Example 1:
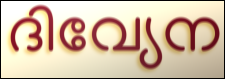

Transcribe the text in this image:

ദിവ്യേന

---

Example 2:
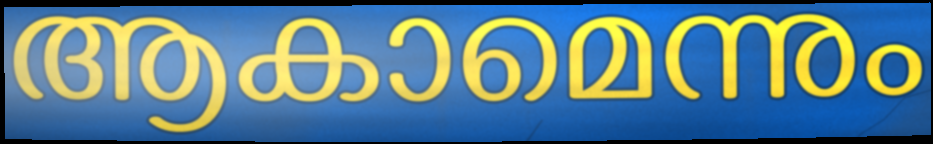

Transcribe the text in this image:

ആകാമെന്നും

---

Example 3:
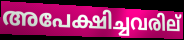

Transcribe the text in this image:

അപേക്ഷിച്ചവരില്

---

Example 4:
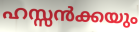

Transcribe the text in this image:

ഹസ്സൻക്കയും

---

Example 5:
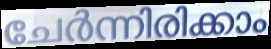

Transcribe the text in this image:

ചേർന്നിരിക്കാം